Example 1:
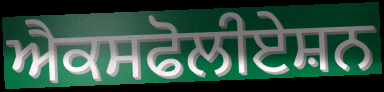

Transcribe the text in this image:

ਐਕਸਫੋਲੀਏਸ਼ਨ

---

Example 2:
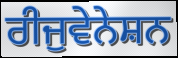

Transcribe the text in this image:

ਰੀਜੁਵੇਨੇਸ਼ਨ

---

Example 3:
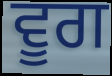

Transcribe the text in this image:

ਵੂਗ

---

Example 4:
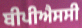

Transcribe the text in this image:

ਬੀਪੀਐਸਸੀ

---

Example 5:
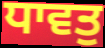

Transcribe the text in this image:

ਧਾਵਤੁ